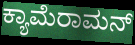
ಕ್ಯಾಮೆರಾಮನ್